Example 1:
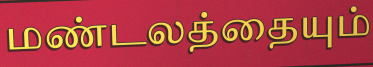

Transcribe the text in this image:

மண்டலத்தையும்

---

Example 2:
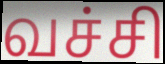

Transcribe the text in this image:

வச்சி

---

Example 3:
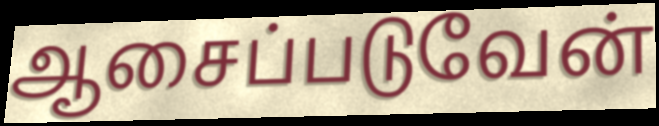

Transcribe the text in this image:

ஆசைப்படுவேன்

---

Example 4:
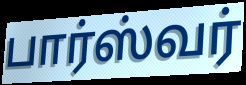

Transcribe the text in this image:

பார்ஸ்வர்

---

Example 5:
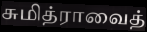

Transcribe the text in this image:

சுமித்ராவைத்